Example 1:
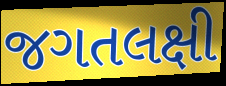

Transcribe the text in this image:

જગતલક્ષી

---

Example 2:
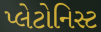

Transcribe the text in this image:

પ્લેટોનિસ્ટ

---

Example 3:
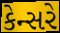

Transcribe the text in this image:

કેન્સરે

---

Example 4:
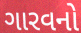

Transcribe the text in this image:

ગારવનો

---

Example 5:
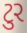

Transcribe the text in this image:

ટુર